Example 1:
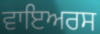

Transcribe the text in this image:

ਵਾਇਅਰਸ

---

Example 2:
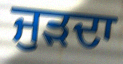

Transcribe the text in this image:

ਜੁੜਦਾ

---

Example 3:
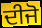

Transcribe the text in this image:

ਦੀਜੋ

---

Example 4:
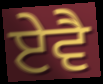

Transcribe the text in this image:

ਏਵੈ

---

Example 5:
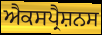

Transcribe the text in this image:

ਐਕਸਪ੍ਰੈਸ਼ਨਸ